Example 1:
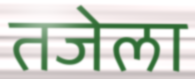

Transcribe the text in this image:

तजेला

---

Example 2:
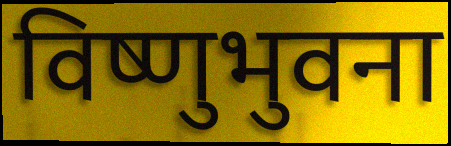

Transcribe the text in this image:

विष्णुभुवना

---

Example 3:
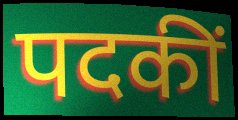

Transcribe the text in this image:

पदकीं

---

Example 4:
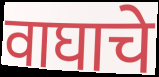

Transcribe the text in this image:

वाघाचे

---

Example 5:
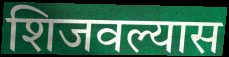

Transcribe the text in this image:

शिजवल्यास